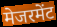
मेजरमेंट